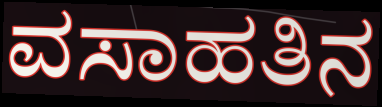
ವಸಾಹತಿನ